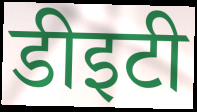
डीइटी